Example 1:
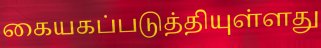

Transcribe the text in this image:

கையகப்படுத்தியுள்ளது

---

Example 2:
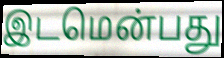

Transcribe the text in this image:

இடமென்பது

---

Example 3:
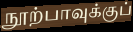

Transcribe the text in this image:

நூற்பாவுக்குப்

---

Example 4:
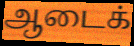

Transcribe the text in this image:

ஆடைக்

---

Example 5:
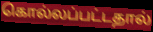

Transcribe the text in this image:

கொல்லப்பட்டதால்